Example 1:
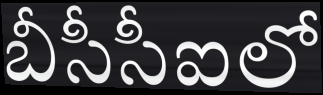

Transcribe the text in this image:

బీసీసీఐలో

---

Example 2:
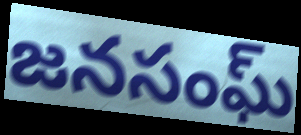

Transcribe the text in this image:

జనసంఘ్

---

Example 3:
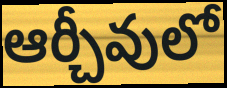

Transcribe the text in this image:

ఆర్చీవులో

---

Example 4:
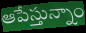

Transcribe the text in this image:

ఆపేస్తున్నాం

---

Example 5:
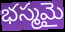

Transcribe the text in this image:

భస్మమై